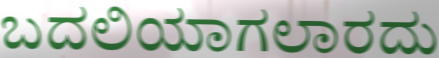
ಬದಲಿಯಾಗಲಾರದು